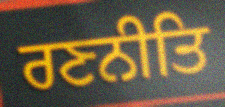
ਰਣਨੀਤਿ